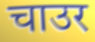
चाउर